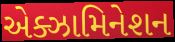
એક્ઝામિનેશન